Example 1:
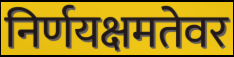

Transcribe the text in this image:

निर्णयक्षमतेवर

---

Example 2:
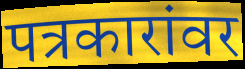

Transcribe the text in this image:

पत्रकारांवर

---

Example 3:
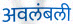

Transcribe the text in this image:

अवलंबली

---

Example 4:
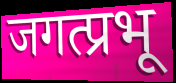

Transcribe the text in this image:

जगत्प्रभू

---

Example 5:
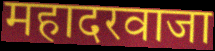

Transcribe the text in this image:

महादरवाजा